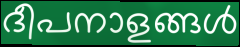
ദീപനാളങ്ങൾ